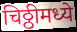
चिठ्ठीमध्ये